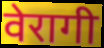
वेरागी